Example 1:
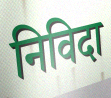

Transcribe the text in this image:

निविदा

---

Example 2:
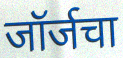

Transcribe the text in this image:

जॉर्जचा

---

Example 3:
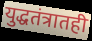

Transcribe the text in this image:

युद्धतंत्रातही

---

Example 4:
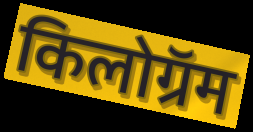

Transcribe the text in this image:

किलोग्रॅम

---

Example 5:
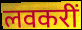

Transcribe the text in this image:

लवकरीं